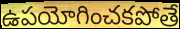
ఉపయోగించకపోతే